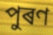
পুৰণ